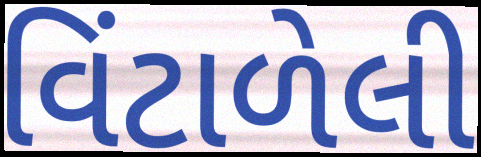
વિંટાળેલી